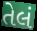
તેલં